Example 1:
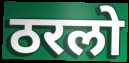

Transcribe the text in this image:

ठरलो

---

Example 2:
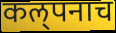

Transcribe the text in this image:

कल्पनाच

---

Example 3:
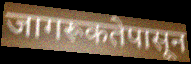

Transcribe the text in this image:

जागरूकतेपासून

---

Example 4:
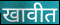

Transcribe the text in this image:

खावीत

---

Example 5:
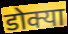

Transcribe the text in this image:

डोक्या